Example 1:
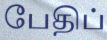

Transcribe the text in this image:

பேதிப்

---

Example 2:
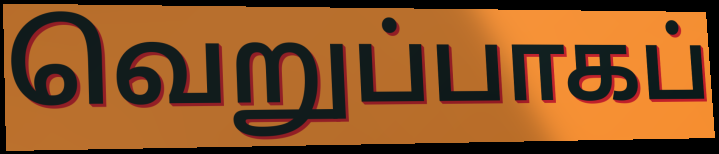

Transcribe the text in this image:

வெறுப்பாகப்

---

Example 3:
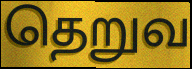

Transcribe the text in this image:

தெறுவ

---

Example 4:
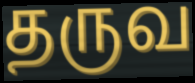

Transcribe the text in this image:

தருவ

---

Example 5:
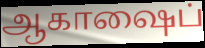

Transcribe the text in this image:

ஆகாஷைப்